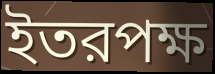
ইতরপক্ষ